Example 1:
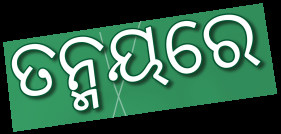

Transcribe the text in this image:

ତନ୍ମୟରେ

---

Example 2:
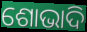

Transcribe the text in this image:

ଶୋଭାଦି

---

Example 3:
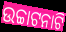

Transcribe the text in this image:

ଉଚ୍ଚାଟନାଟି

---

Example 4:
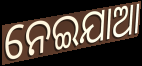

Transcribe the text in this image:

ନେଇଯାଆ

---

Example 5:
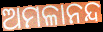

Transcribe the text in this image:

ଅମଳାନନ୍ଦ